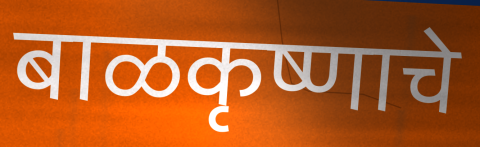
बाळकृष्णाचे